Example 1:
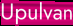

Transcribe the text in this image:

Upulvan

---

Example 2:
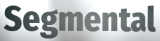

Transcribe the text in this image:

Segmental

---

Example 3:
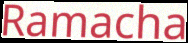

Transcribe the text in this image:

Ramacha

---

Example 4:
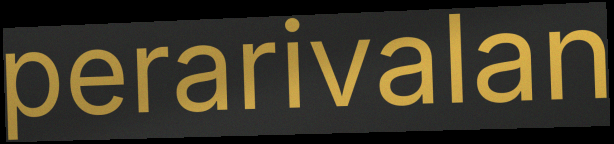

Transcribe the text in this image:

perarivalan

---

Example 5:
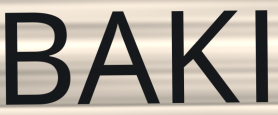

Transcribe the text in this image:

BAKI